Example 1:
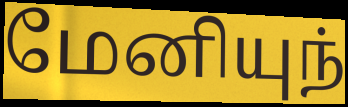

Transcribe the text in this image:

மேனியுந்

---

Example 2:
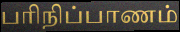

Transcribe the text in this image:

பரிநிப்பாணம்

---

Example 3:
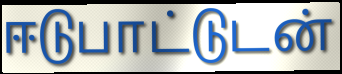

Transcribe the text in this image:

ஈடுபாட்டுடன்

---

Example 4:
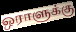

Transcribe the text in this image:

ஒராளுக்கு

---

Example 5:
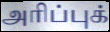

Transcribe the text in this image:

அரிப்புக்